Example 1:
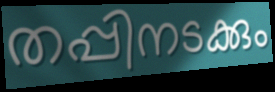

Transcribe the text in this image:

തപ്പിനടക്കും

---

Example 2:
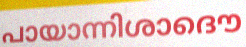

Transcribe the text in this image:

പായാന്നിശാദൌ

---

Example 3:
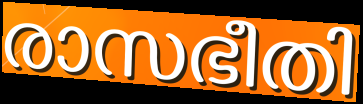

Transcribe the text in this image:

രാസഭീതി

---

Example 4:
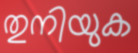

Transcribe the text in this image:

തുനിയുക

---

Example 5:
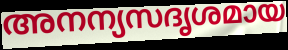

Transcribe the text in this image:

അനന്യസദൃശമായ